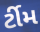
ર્ટીમ